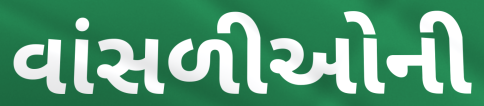
વાંસળીઓની